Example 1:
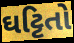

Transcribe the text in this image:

ઘટ્ટિતો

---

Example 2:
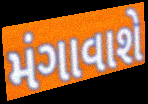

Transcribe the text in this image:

મંગાવાશે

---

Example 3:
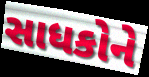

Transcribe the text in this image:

સાધકોને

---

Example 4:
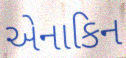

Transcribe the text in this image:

એનાકિન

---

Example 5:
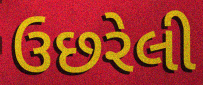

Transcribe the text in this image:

ઉછરેલી